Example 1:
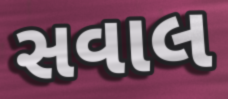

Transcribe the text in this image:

સવાલ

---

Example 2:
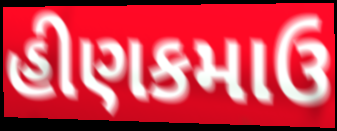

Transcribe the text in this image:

હીણકમાઉ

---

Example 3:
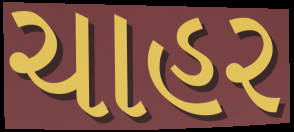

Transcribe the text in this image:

ચાહર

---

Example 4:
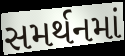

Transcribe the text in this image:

સમર્થનમાં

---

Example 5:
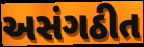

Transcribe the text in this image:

અસંગઠીત